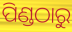
ପିଣ୍ଡଠାରୁ